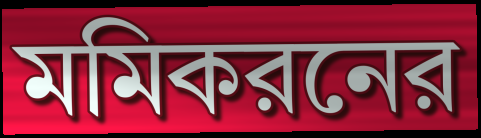
মমিকরনের